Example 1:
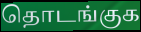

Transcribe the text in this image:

தொடங்குக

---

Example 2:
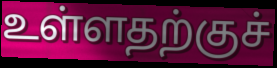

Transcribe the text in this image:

உள்ளதற்குச்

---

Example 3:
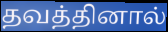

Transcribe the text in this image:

தவத்தினால்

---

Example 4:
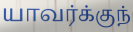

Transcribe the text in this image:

யாவர்க்குந்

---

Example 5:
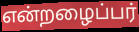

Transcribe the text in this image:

என்றழைப்பர்